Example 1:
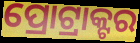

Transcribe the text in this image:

ପ୍ରୋଟ୍ରାକ୍ଟର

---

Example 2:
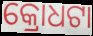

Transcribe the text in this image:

କ୍ରୋଧଟା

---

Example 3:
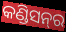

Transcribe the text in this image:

କଣ୍ଡିସନ୍‌ର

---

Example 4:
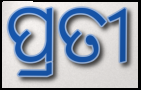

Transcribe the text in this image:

ପ୍ରତୀ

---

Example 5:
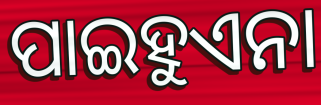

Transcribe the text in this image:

ପାଇହୁଏନା